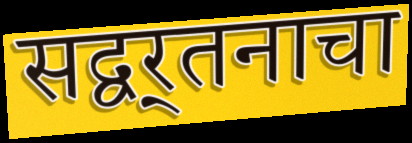
सद्वर्तनाचा